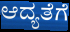
ಆದ್ಯತೆಗೆ